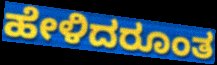
ಹೇಳಿದರೂಂತ